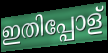
ഇതിപ്പോള്